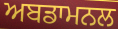
ਅਬਡਾਮਨਲ